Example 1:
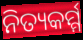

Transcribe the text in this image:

ନିତ୍ୟକର୍ମ୍ମ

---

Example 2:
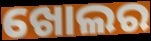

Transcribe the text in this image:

ଖୋଲର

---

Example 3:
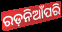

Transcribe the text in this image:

ରଡ଼ନିଆଁପରି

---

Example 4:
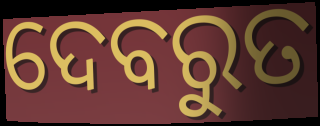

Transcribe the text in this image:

ଦେବରୁତ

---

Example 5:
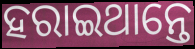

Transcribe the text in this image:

ହରାଇଥାନ୍ତେ